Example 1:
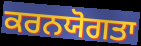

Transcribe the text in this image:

ਕਰਨਯੋਗਤਾ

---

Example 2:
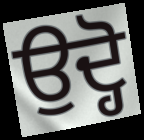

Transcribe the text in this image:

ਉਦ੍ਹੋ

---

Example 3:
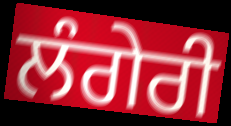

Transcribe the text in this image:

ਲੰਗੇਰੀ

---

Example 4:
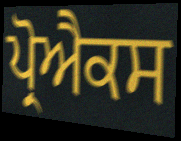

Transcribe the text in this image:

ਪ੍ਰੋਐਕਸ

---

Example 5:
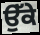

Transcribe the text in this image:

ਉੱਕੇ